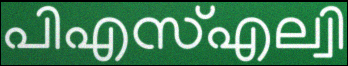
പിഎസ്എല്വി